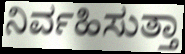
ನಿರ್ವಹಿಸುತ್ತಾ